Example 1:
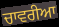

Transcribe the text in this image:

ਚਾਵਰੀਆ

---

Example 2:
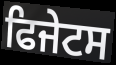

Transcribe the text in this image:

ਫਿਜੇਟਸ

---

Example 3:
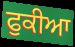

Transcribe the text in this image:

ਫੁਕੀਆ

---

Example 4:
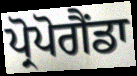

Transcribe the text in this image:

ਪ੍ਰੋਪੋਗੈਂਡਾ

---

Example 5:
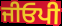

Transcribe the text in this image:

ਜੀਓਪੀ